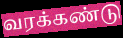
வரக்கண்டு